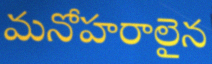
మనోహరాలైన